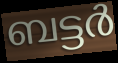
ബട്ടർ